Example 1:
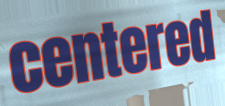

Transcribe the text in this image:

centered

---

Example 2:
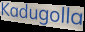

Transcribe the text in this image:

Kadugolla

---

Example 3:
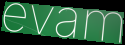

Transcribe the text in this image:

evam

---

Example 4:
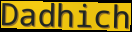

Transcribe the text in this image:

Dadhich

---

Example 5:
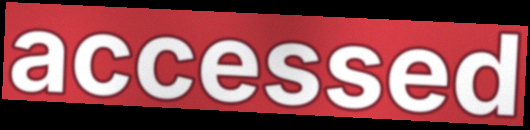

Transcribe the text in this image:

accessed